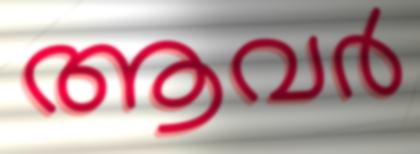
ആവർ